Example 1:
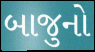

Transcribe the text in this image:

બાજુનો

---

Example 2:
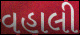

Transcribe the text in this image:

વહાલી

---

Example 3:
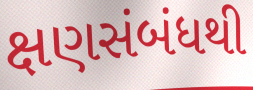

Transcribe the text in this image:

ક્ષણસંબંધથી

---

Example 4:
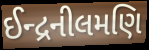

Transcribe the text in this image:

ઈન્દ્રનીલમણિ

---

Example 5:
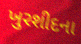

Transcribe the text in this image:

ખુરશીદના